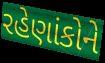
રહેણાંકોને